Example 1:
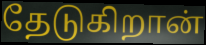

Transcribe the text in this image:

தேடுகிறான்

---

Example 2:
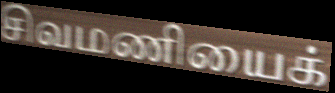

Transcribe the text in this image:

சிவமணியைக்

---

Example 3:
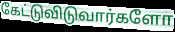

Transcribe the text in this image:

கேட்டுவிடுவார்களோ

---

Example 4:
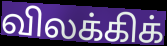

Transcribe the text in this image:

விலக்கிக்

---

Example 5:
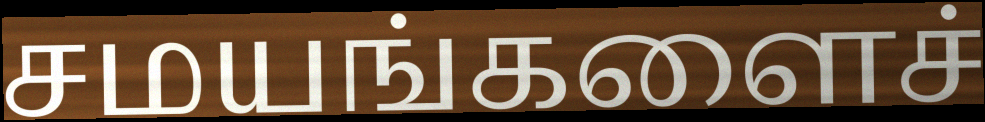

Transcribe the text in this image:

சமயங்களைச்